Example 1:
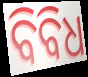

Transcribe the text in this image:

ବିବିଧ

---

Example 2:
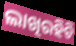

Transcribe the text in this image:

ଲାଖିରହିଚି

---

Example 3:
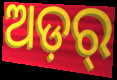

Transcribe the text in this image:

ଅଡ଼ର୍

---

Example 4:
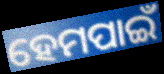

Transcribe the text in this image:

ହେମପାଇଁ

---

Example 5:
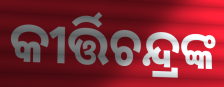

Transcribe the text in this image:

କୀର୍ତ୍ତିଚନ୍ଦ୍ରଙ୍କ